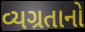
વ્યગ્રતાનો